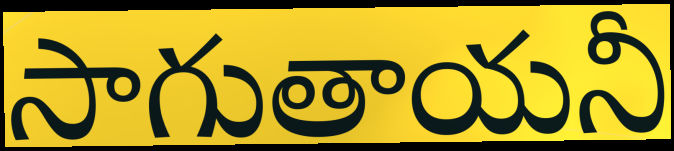
సాగుతాయనీ